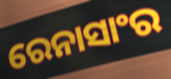
ରେନାସାଂର